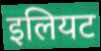
इलियट